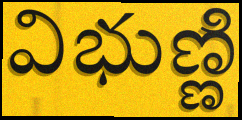
విభుణ్ణి